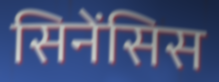
सिनेंसिस